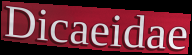
Dicaeidae